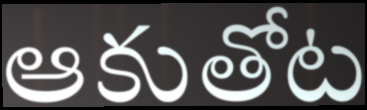
ఆకుతోట